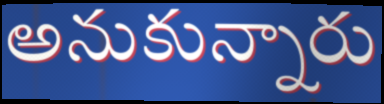
అనుకున్నారు